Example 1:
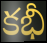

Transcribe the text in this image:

కభీ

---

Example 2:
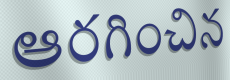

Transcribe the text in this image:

ఆరగించిన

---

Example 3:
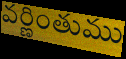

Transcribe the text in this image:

వర్ణింతుము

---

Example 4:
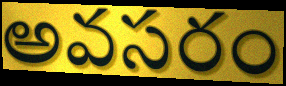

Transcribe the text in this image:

అవసరం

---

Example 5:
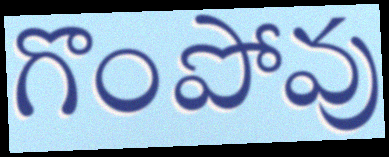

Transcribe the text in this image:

గొంపోవు